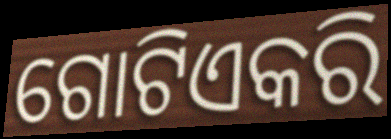
ଗୋଟିଏକରି